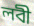
লবী